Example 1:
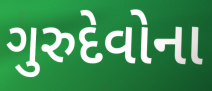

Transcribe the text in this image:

ગુરુદેવોના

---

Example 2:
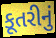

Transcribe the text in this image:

કૂતરીનું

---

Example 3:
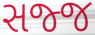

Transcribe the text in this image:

સજ્જ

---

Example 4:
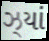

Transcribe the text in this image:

ઝ્યાં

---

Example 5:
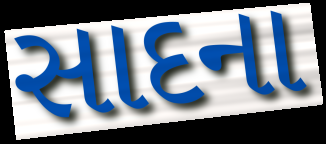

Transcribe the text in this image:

સાદના